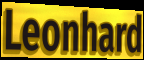
Leonhard